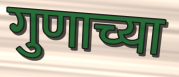
गुणाच्या